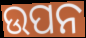
ଉପନ